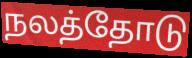
நலத்தோடு